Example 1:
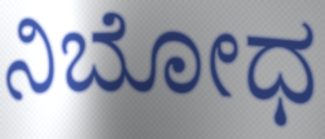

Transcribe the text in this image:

ನಿಬೋಧ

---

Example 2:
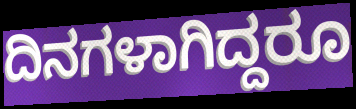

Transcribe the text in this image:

ದಿನಗಳಾಗಿದ್ದರೂ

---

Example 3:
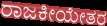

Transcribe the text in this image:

ರಾಜಕೀಯೇತರ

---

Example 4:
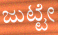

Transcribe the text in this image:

ಜುಟ್ಟೇ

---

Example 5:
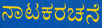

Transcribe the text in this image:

ನಾಟಕರಚನೆ